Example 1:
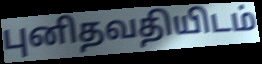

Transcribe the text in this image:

புனிதவதியிடம்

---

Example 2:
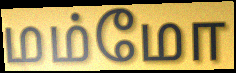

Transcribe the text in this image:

மம்மோ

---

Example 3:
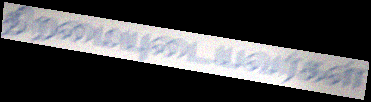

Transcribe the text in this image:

திறமையுடையவர்கள்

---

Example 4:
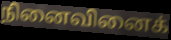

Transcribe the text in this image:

நினைவினைக்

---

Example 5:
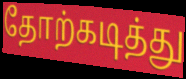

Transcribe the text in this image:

தோற்கடித்து